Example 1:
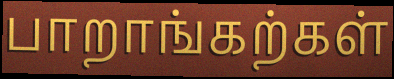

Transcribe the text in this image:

பாறாங்கற்கள்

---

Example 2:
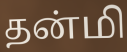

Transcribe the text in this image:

தன்மி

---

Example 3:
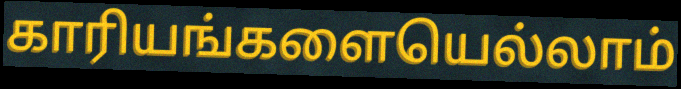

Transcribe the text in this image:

காரியங்களையெல்லாம்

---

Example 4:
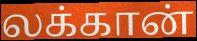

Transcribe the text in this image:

லக்கான்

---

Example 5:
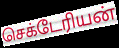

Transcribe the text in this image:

செக்டேரியன்